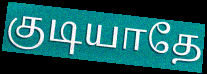
குடியாதே